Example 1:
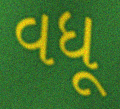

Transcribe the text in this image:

વધૂ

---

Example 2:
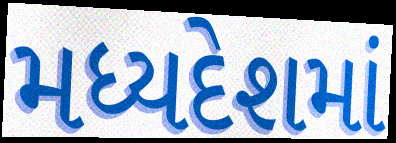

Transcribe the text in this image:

મધ્યદેશમાં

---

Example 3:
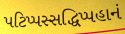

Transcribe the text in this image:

પટિપ્પસ્સદ્ધિપ્પહાનં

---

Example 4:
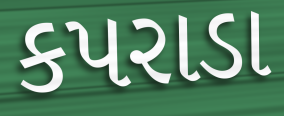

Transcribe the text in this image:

કપરાડા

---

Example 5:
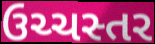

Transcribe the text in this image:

ઉચ્ચસ્તર